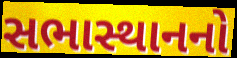
સભાસ્થાનનો